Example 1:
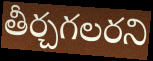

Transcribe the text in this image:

తీర్చగలరని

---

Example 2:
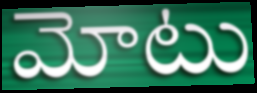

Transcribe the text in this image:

మోటు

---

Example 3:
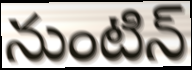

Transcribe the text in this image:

నుంటిన్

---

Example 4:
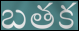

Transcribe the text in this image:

బతక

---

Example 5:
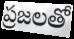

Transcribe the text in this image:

ప్రజలతో